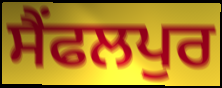
ਸੈਂਫਲਪੁਰ